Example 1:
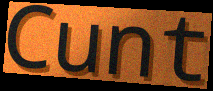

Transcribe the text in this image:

Cunt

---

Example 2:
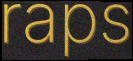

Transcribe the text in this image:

raps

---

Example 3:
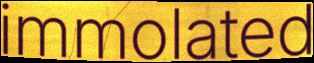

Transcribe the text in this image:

immolated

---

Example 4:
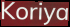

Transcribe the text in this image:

Koriya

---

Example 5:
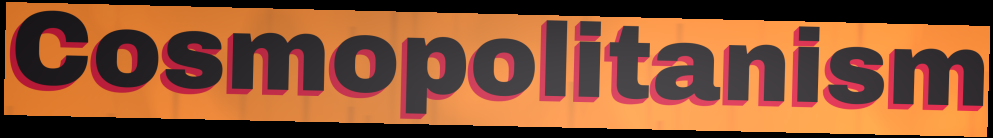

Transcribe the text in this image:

Cosmopolitanism